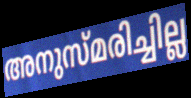
അനുസ്മരിച്ചില്ല